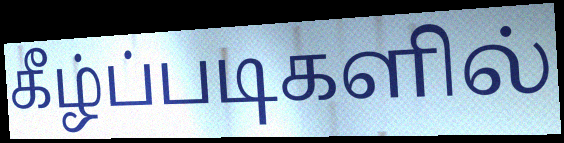
கீழ்ப்படிகளில்